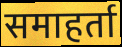
समाहर्ता